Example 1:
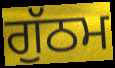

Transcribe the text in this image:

ਗੁੱਠਮ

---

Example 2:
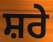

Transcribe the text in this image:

ਸ਼ਰੇ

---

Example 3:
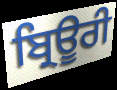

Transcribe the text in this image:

ਬ੍ਰਿਊਰੀ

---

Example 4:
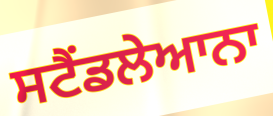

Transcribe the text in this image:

ਸਟੈਂਡਲੇਆਨਾ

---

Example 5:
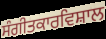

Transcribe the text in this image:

ਸੰਗੀਤਕਾਰਵਿਸ਼ਾਲ